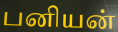
பனியன்